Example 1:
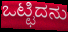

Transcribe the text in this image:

ಒಟ್ಟಿದನು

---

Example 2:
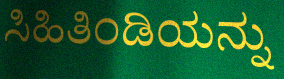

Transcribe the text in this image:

ಸಿಹಿತಿಂಡಿಯನ್ನು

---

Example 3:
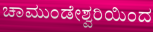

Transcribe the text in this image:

ಚಾಮುಂಡೇಶ್ವರಿಯಿಂದ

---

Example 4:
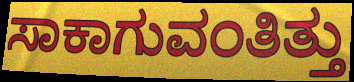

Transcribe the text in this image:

ಸಾಕಾಗುವಂತಿತ್ತು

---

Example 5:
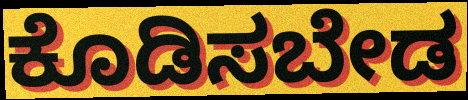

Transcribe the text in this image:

ಕೊಡಿಸಬೇಡ